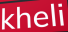
kheli